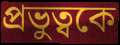
প্রভুত্বকে